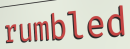
rumbled